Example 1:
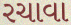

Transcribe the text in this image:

રચાવા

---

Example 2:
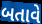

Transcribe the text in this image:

બતાવે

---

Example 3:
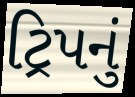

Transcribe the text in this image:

ટ્રિપનું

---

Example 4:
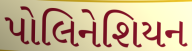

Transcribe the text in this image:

પોલિનેશિયન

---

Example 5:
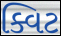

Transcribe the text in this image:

ક્વિટ